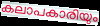
കലാപകാരിയും